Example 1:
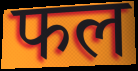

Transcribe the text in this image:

फल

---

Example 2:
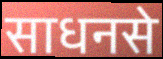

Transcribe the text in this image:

साधनसे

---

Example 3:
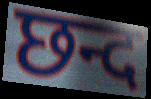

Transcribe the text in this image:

छन्द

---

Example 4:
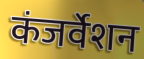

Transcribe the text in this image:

कंजर्वेशन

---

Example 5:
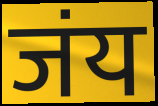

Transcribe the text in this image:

जंय